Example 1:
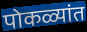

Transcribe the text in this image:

पोकळ्यांत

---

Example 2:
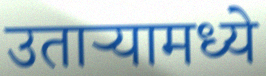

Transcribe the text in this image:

उताऱ्यामध्ये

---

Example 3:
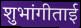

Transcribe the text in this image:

शुभांगीताई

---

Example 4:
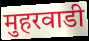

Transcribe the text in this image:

मुहरवाडी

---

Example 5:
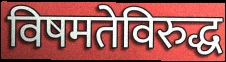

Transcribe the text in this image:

विषमतेविरुद्ध